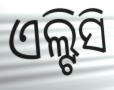
ଏଲ୍ଟିସି